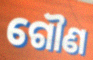
ଗୌଣ